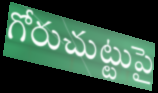
గోరుచుట్టుపై